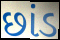
છાંડ